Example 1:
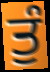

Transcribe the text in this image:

ਤੁੰ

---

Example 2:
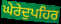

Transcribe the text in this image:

ਘੇਰੇਦੁਪਹਿਰ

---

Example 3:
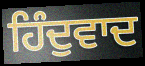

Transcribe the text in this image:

ਹਿੰਦੁਵਾਦ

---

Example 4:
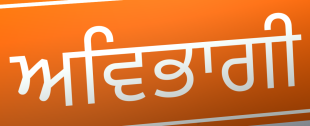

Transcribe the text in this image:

ਅਵਿਭਾਗੀ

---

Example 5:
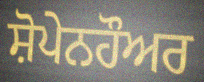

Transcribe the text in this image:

ਸ਼ੋਪੇਨਹੌਅਰ